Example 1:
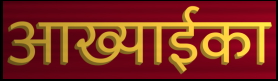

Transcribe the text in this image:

आख्याईका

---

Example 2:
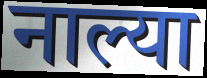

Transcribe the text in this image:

नाल्या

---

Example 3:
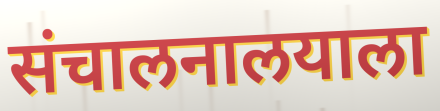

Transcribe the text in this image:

संचालनालयाला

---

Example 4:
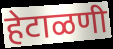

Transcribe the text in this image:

हेटाळणी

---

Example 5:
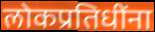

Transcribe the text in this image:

लोकप्रतिधींना